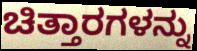
ಚಿತ್ತಾರಗಳನ್ನು